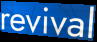
revival